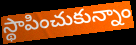
స్థాపించుకున్నాం